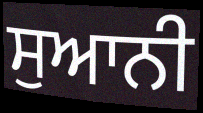
ਸੁਆਨੀ